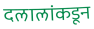
दलालांकडून